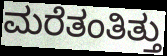
ಮರೆತಂತಿತ್ತು